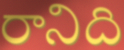
రానిది